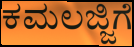
ಕಮಲಜ್ಜಿಗೆ